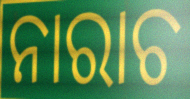
ନାରାଚ